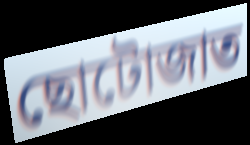
ছোটোজাত